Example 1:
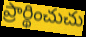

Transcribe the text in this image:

ప్రార్థించుచు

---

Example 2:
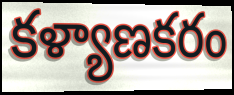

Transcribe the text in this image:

కళ్యాణకరం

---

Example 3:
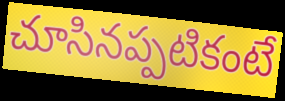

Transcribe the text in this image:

చూసినప్పటికంటే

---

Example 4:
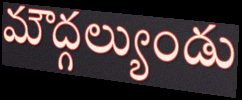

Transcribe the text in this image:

మౌద్గల్యుండు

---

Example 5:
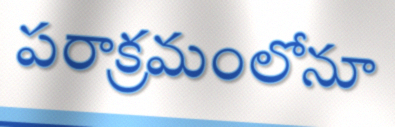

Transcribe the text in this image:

పరాక్రమంలోనూ